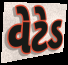
વેટેડ